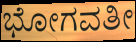
ಭೋಗವತೀ